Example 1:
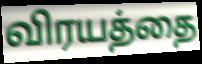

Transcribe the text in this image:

விரயத்தை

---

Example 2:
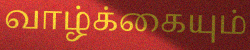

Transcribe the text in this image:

வாழ்க்கையும்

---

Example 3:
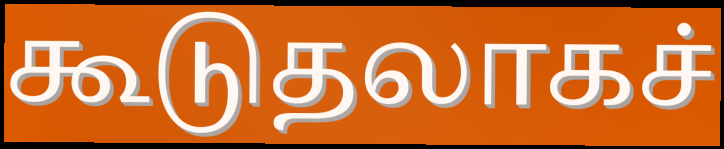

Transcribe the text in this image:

கூடுதலாகச்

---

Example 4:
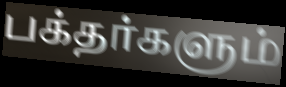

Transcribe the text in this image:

பக்தர்களும்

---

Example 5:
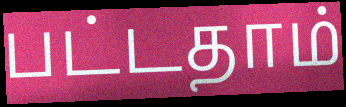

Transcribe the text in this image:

பட்டதாம்